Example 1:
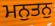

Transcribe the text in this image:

ਮਨੁਤਨੁ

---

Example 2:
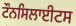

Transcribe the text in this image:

ਟੌਨਸਿਲਾਈਟਸ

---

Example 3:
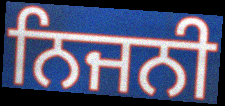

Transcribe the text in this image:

ਨਿਜਨੀ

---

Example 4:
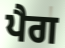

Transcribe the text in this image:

ਪੈਗ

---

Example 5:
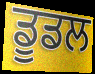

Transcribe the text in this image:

ਡੂਡਲ